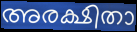
അരക്ഷിതാ